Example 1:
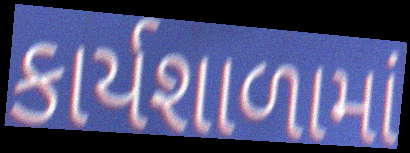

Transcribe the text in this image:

કાર્યશાળામાં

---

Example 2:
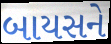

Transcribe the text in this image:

બાયસને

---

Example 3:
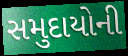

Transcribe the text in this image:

સમુદાયોની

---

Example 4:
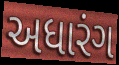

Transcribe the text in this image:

અધારંગ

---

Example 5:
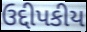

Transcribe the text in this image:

ઉદ્દીપકીય